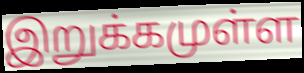
இறுக்கமுள்ள